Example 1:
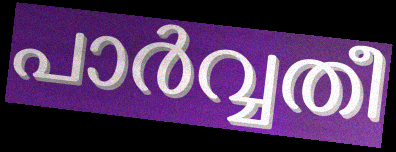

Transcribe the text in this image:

പാർവ്വതീ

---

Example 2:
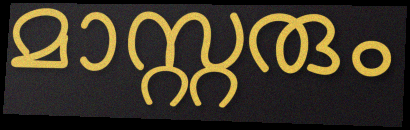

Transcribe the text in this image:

മാസ്റ്റരും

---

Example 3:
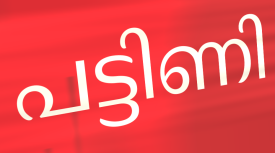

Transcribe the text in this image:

പട്ടിണി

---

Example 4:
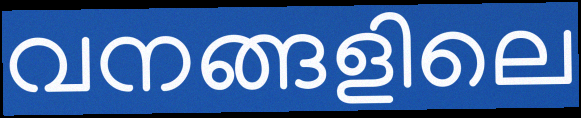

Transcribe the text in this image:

വനങ്ങളിലെ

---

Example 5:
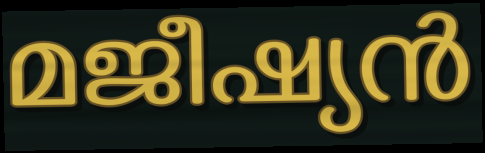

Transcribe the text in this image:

മജീഷ്യൻ